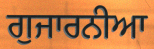
ਗੁਜਾਰਨੀਆ